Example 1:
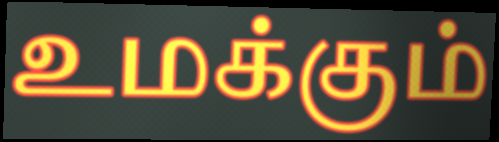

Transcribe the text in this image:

உமக்கும்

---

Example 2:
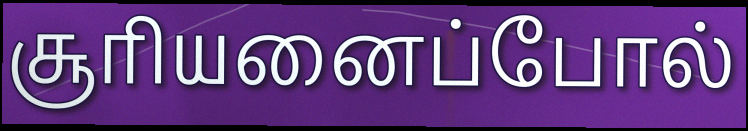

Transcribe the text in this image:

சூரியனைப்போல்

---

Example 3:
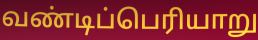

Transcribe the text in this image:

வண்டிப்பெரியாறு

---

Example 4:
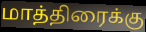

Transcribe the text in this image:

மாத்திரைக்கு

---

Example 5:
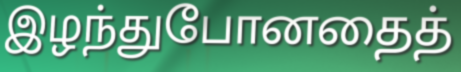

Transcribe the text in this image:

இழந்துபோனதைத்